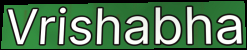
Vrishabha